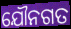
ଯୌନଗତ